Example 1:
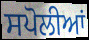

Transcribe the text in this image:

ਸਪੋਲੀਆਂ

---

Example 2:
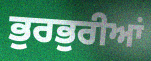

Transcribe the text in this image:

ਭੁਰਭੁਰੀਆਂ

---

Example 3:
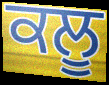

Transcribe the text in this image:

ਕਲੂ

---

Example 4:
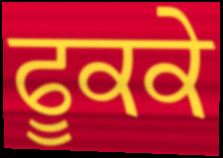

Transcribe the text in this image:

ਫੂਕਕੇ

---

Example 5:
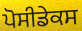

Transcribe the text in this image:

ਪੋਸੀਡੇਕਸ